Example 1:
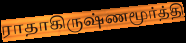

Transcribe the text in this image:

ராதாகிருஷ்ணமூர்த்தி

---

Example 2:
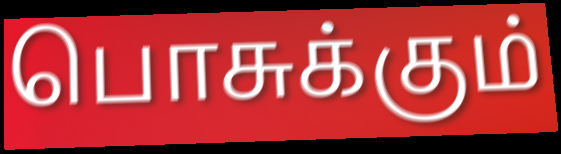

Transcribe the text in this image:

பொசுக்கும்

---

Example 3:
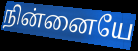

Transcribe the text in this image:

நின்னையே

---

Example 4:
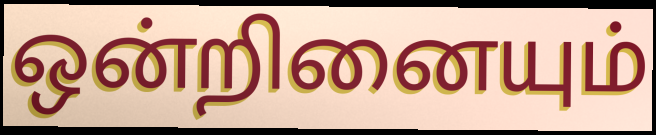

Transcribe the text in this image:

ஒன்றினையும்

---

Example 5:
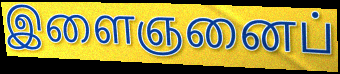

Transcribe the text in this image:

இளைஞனைப்